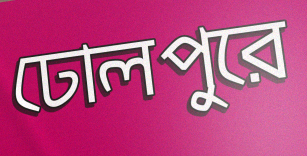
ঢোলপুরে